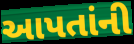
આપતાંની